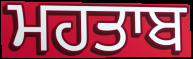
ਮਹਤਾਬ